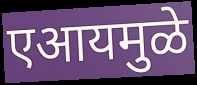
एआयमुळे